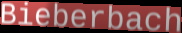
Bieberbach